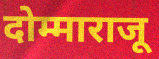
दोम्माराजू